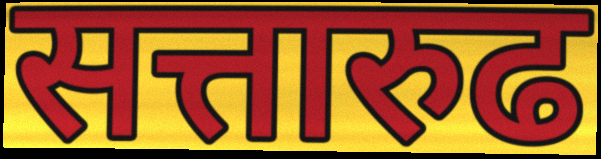
सत्तारुढ